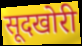
सूदखोरी